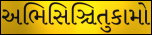
અભિસિઞ્ચિતુકામો